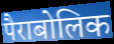
पैराबोलिक